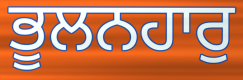
ਭੂਲਨਹਾਰੁ